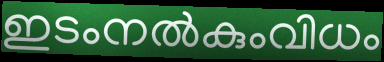
ഇടംനൽകുംവിധം